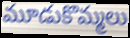
మూడుకొమ్మలు